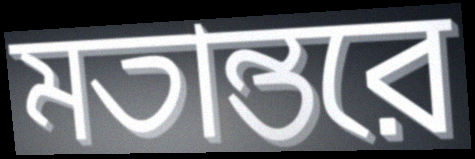
মতান্তরে